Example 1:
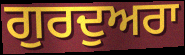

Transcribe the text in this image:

ਗੁਰਦੁਅਰਾ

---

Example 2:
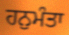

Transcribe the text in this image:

ਹਨੁਮੰਤਾ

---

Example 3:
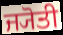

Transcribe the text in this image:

ਜ੍ਯੋਤੀ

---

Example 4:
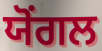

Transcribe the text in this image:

ਯੋਂਗਲ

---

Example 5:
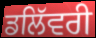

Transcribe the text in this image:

ਡਲਿੱਵਰੀ